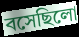
বসেছিলো